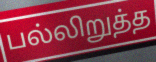
பல்லிறுத்த